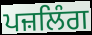
ਪਜ਼ਲਿੰਗ